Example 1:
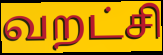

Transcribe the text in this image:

வறட்சி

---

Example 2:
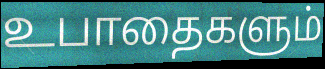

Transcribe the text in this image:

உபாதைகளும்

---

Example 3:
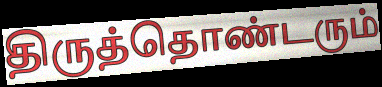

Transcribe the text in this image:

திருத்தொண்டரும்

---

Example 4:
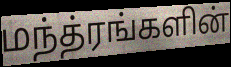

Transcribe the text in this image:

மந்த்ரங்களின்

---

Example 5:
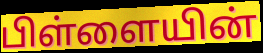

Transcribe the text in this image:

பிள்ளையின்